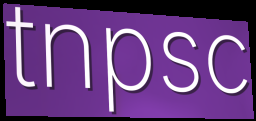
tnpsc